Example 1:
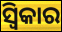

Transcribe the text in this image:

ସ୍ୱିକାର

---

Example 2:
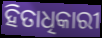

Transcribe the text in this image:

ହିତାଧିକାରୀ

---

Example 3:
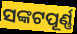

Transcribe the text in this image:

ସଙ୍କଟପୂର୍ଣ୍ଣ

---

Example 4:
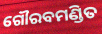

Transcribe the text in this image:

ଗୌରବମଣ୍ଡିତ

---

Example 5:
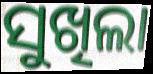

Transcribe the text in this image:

ସୁଖିଲା